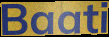
Baati